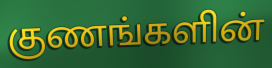
குணங்களின்